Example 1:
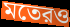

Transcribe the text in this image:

মতেরও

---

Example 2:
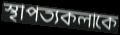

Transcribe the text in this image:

স্থাপত্যকলাকে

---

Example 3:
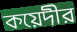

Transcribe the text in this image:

কয়েদীর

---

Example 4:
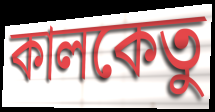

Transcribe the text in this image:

কালকেতু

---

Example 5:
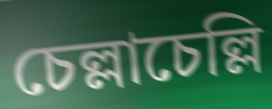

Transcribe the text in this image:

চেল্লাচেল্লি